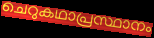
ചെറുകഥാപ്രസ്ഥാനം